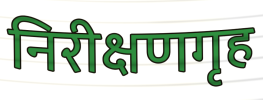
निरीक्षणगृह